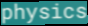
physics